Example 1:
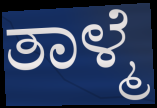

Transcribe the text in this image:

ತಾಳ್ಮೆ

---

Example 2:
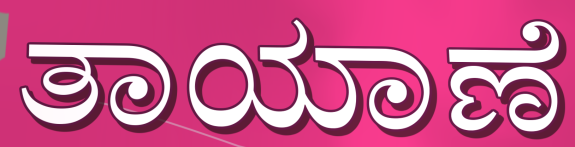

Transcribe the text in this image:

ತಾಯಾಣೆ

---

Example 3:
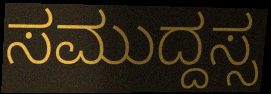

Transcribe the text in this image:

ಸಮುದ್ದಸ್ಸ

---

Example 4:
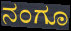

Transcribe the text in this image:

ನಂಗೂ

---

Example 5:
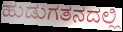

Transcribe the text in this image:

ಹುಡುಗತನದಲ್ಲಿ